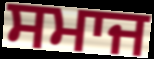
ਸਮਾਜ